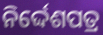
ନିର୍ଦ୍ଦେଶପତ୍ର